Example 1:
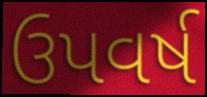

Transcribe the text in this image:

ઉપવર્ષ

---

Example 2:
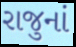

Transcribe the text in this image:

રાજુનાં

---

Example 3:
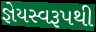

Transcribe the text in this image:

જ્ઞેયસ્વરૂપથી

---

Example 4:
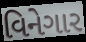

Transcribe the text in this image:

વિનેગાર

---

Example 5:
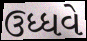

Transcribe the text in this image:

ઉધ્ધવે